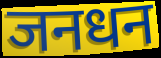
जनधन